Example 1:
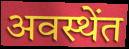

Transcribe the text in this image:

अवस्थेंत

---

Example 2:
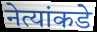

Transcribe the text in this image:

नेत्यांकडे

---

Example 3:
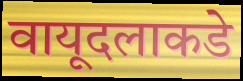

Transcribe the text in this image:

वायूदलाकडे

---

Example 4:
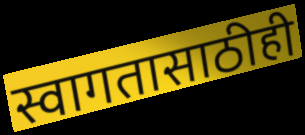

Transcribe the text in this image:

स्वागतासाठीही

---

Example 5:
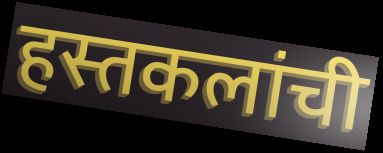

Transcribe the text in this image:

हस्तकलांची